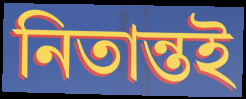
নিতান্তই